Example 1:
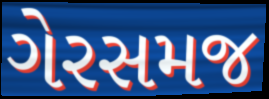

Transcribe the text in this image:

ગેરસમજ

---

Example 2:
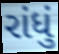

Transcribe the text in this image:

રાંધું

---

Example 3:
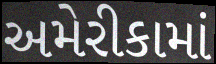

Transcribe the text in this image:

અમેરીકામાં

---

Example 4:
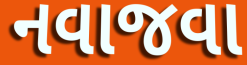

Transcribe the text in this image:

નવાજવા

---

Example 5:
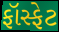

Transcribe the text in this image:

ફૉસ્ફેટ